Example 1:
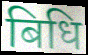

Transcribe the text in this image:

बिधि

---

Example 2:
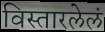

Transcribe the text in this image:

विस्तारलेलं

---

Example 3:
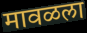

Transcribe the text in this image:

मावळला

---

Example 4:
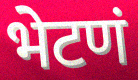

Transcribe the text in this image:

भेटणं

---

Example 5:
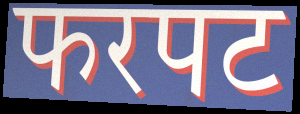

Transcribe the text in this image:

फरपट